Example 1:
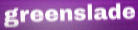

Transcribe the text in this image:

greenslade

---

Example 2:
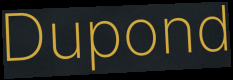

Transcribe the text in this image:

Dupond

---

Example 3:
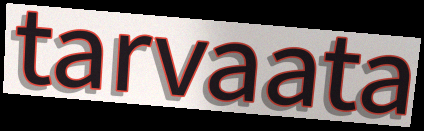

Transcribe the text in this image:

tarvaata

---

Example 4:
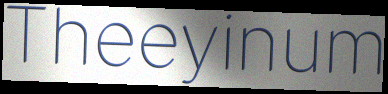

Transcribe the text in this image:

Theeyinum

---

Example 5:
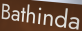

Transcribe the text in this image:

Bathinda